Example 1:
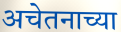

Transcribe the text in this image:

अचेतनाच्या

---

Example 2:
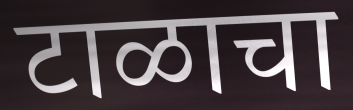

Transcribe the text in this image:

टाळाचा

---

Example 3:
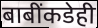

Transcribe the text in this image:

बाबींकडेही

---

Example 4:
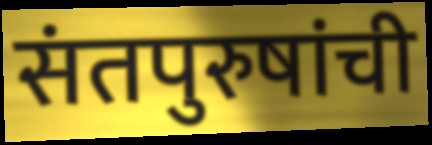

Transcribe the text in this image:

संतपुरुषांची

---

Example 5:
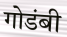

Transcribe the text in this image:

गोडंबी